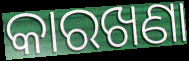
କାରଖଣା